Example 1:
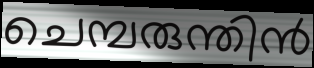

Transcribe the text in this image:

ചെമ്പരുന്തിൻ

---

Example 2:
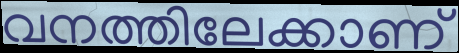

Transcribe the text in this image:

വനത്തിലേക്കാണ്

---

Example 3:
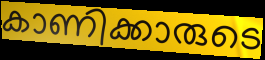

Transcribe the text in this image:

കാണിക്കാരുടെ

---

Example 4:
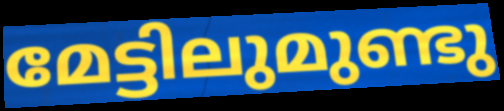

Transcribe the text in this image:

മേട്ടിലുമുണ്ടു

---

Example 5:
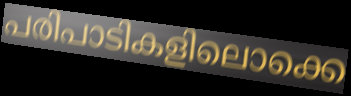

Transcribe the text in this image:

പരിപാടികളിലൊക്കെ